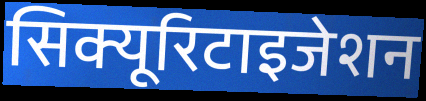
सिक्यूरिटाइजेशन